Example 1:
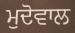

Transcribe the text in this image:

ਮੁਦੋਵਾਲ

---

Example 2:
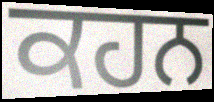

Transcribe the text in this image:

ਕਹਨ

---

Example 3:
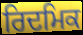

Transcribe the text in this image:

ਰਿਦਮਿਕ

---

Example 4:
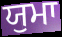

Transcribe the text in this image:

ਯੁਮਾ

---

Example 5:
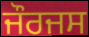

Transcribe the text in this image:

ਜੌਰਜਸ